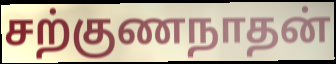
சற்குணநாதன்